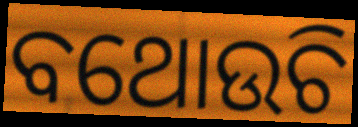
ବଥୋଉଚି